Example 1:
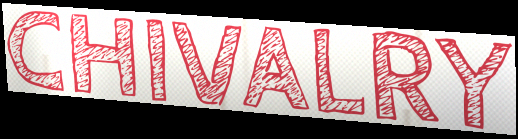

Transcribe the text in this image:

CHIVALRY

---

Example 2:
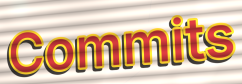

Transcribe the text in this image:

Commits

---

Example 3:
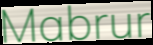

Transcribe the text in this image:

Mabrur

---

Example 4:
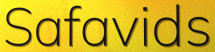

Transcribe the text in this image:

Safavids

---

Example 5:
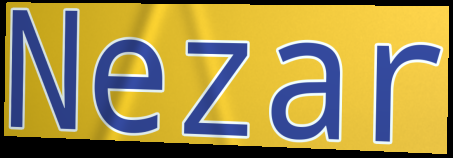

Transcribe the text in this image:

Nezar